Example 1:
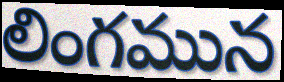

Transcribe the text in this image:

లింగమున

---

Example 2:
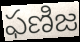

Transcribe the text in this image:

ఫణిజ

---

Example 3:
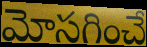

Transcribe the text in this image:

మోసగించే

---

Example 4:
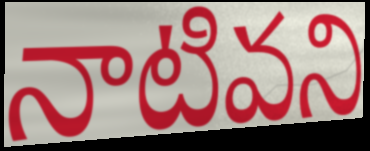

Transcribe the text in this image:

నాటివని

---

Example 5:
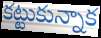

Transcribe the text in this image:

కట్టుకున్నాక